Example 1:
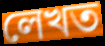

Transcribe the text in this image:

লেখত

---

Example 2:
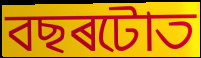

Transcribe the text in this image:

বছৰটোত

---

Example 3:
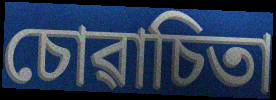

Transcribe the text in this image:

চোৱাচিতা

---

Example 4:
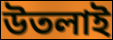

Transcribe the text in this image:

উতলাই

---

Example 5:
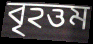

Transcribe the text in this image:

বৃহত্তম